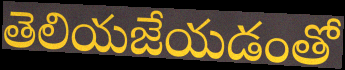
తెలియజేయడంతో